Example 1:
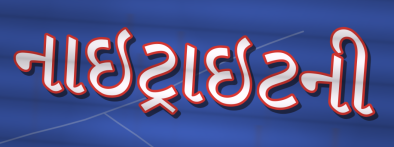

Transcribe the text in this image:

નાઇટ્રાઇટની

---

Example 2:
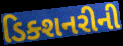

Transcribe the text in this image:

ડિક્શનરીની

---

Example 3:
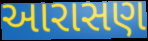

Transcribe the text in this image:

આરાસણ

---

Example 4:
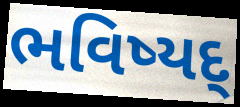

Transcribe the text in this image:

ભવિષ્યદ્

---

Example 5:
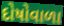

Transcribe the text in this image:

દોષોવાળા